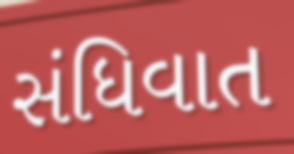
સંધિવાત